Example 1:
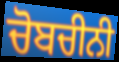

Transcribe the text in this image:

ਚੋਬਚੀਨੀ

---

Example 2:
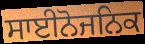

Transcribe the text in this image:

ਸਾਈਨੋਜਨਿਕ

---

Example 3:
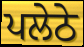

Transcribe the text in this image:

ਪਲੇਠੇ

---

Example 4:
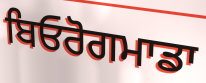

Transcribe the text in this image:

ਬਿਓਰੋਗਮਾਡਾ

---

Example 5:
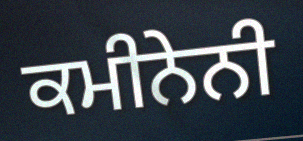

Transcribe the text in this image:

ਕਮੀਨੇਨੀ